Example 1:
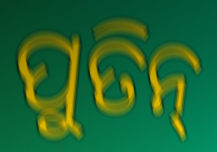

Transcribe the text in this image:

ପୁତିନ୍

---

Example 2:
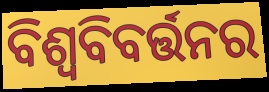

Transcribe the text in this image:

ବିଶ୍ଵବିବର୍ତ୍ତନର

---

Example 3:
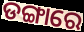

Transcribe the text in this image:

ଡଙ୍ଗାରେ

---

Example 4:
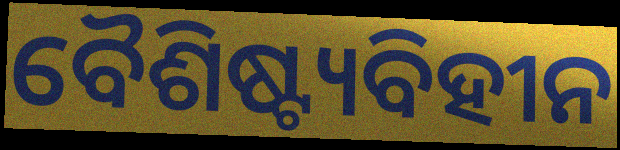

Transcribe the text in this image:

ବୈଶିଷ୍ଟ୍ୟବିହୀନ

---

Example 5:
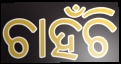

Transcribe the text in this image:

ଚାହଁଚି